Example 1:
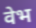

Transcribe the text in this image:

वेभ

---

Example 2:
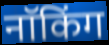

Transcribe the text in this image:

नॉकिंग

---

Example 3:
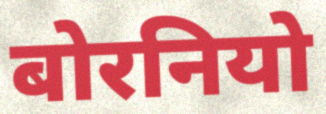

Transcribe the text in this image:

बोरनियो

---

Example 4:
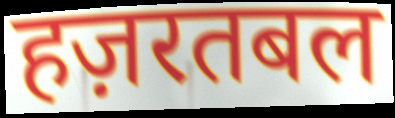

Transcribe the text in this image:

हज़रतबल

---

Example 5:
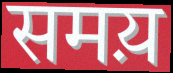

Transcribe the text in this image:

समय़